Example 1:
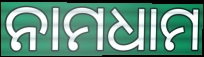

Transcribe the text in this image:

ନାମଧାମ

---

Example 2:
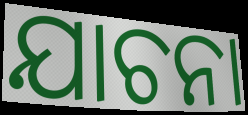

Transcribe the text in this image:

ଯାଚନା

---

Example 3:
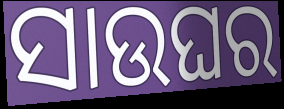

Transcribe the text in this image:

ସାଉଘର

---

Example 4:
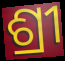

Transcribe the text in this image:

ଶ୍ରୀ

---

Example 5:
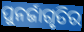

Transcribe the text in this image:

ପୁନର୍ଜାଗୃତିର